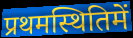
प्रथमस्थितिमें